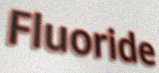
Fluoride